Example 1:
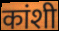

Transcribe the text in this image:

कांशी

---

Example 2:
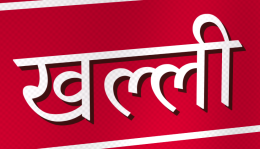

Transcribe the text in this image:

खल्ली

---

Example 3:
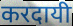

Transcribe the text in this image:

करदायी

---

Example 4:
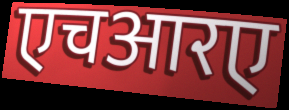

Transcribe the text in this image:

एचआरए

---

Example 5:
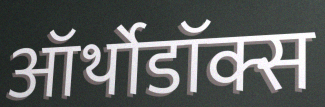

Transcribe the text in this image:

ऑर्थोडॉक्स